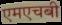
एमएचबी